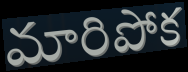
మారిపోక